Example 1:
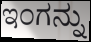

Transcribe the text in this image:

ಇಂಗನ್ನು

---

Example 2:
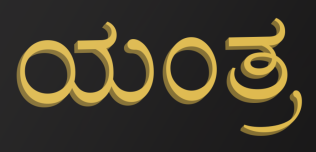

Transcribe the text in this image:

ಯಂತ್ರ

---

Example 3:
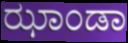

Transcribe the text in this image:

ಝಾಂಡಾ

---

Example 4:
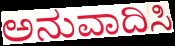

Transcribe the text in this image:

ಅನುವಾದಿಸಿ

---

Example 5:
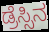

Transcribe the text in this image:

ಡ್ರೆಸ್ಸಿನ